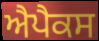
ਐਪੈਕਸ